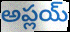
అప్లయ్